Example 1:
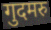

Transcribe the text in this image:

गुदमरु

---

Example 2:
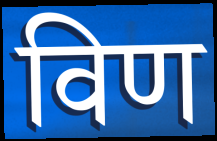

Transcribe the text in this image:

विण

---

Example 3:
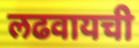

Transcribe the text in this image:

लढवायची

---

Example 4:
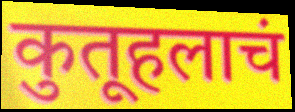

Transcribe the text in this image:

कुतूहलाचं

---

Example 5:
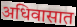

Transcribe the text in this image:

अधिवासात